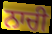
ਨਾਚੀ